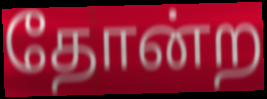
தோன்ற